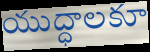
యుద్ధాలకూ